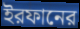
ইরফানের